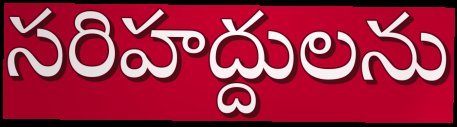
సరిహద్దులను